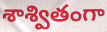
శాశ్వితంగా